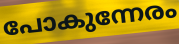
പോകുന്നേരം